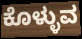
ಕೊಳ್ಳುವ